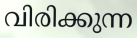
വിരിക്കുന്ന